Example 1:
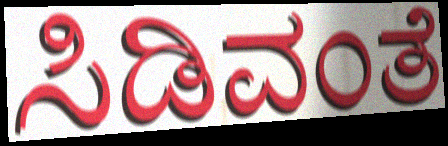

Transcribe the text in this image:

ಸಿಡಿವಂತೆ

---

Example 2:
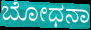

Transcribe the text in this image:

ಬೋಧನಾ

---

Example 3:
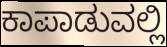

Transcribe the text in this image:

ಕಾಪಾಡುವಲ್ಲಿ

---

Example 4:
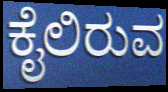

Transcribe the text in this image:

ಕೈಲಿರುವ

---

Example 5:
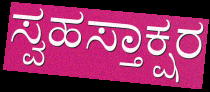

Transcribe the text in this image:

ಸ್ವಹಸ್ತಾಕ್ಷರ